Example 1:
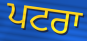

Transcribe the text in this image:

ਪਟਰਾ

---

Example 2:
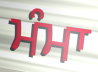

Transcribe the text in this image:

ਮੰਮਾ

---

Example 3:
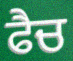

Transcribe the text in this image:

ਫੈਚ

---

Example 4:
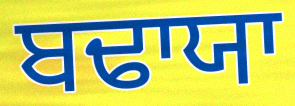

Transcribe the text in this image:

ਬਢਾਯਾ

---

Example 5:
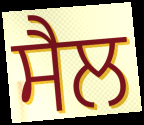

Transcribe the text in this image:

ਸੈਲ